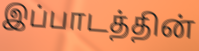
இப்பாடத்தின்